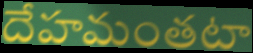
దేహమంతటా